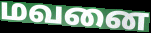
மவனை